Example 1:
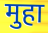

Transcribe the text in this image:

मुहा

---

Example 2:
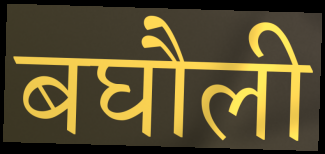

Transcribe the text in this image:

बघौली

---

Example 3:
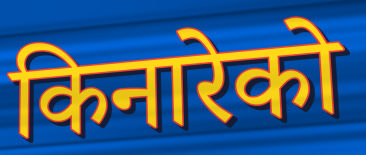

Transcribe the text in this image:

किनारेको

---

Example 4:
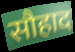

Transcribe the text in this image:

सौहाद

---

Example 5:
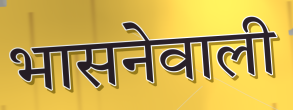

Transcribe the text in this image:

भासनेवाली